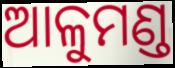
ଆଳୁମଣ୍ଡ